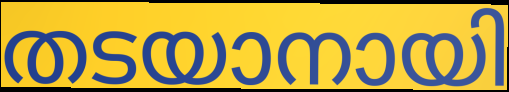
തടയാനായി